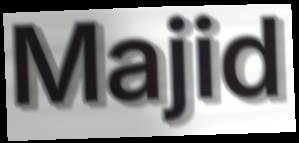
Majid